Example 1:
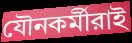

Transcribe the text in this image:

যৌনকর্মীরাই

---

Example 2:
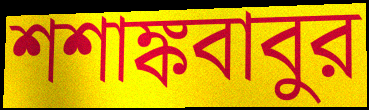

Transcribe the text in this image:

শশাঙ্কবাবুর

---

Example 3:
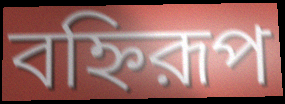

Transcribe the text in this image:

বহ্নিরূপ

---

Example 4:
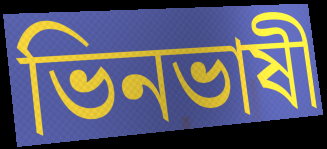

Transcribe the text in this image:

ভিনভাষী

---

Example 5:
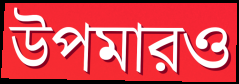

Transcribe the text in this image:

উপমারও